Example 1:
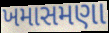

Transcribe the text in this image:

ખમાસમણા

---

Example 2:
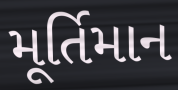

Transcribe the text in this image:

મૂર્તિમાન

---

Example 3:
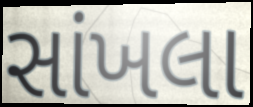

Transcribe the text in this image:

સાંખલા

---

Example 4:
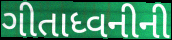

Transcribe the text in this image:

ગીતાધ્વનીની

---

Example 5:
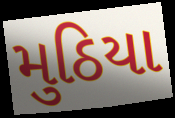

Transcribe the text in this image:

મુઠિયા